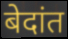
बेदांत